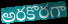
అరకొరగా